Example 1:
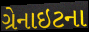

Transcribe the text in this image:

ગ્રેનાઇટના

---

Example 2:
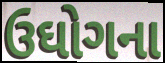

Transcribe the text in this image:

ઉઘોગના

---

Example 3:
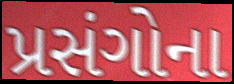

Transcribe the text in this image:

પ્રસંગોના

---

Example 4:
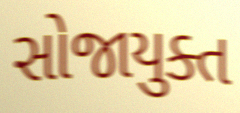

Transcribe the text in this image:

સોજાયુક્ત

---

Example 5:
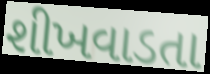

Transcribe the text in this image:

શીખવાડતા